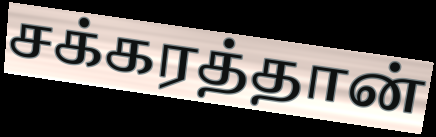
சக்கரத்தான்